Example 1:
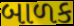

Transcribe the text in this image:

બાળક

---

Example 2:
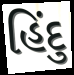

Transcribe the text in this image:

હિંદુ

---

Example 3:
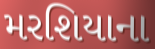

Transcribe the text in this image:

મરશિયાના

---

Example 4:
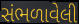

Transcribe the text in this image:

સંભળાવેલી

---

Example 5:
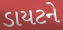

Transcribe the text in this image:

ડાયટને